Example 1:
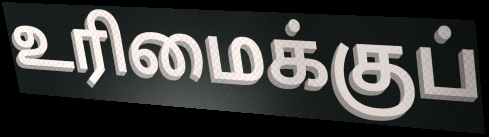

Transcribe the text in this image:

உரிமைக்குப்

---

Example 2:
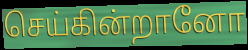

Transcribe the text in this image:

செய்கின்றானோ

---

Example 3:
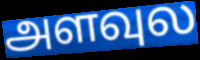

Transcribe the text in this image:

அளவுல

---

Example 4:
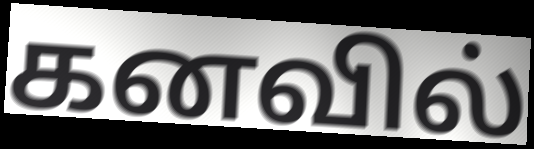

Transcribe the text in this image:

கனவில்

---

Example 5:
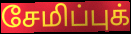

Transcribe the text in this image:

சேமிப்புக்